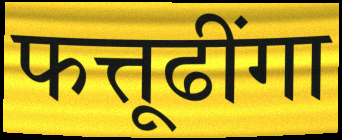
फत्तूढींगा